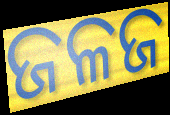
ଜଳଜ